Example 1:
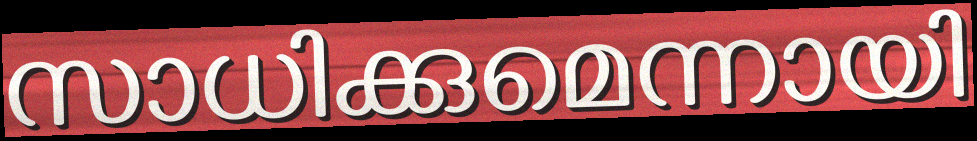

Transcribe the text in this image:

സാധിക്കുമെന്നായി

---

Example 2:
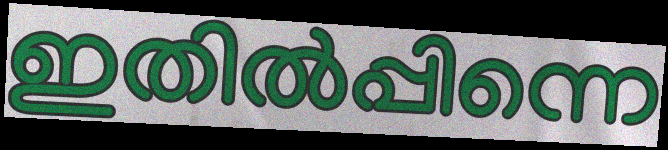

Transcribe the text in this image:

ഇതിൽപ്പിന്നെ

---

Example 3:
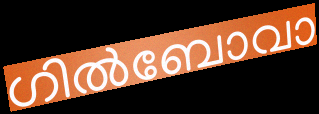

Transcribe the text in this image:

ഗിൽബോവാ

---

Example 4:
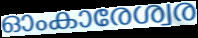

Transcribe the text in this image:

ഓംകാരേശ്വര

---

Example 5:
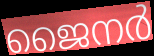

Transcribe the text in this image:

ജൈനർ